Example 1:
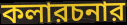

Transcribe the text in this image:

কলারচনার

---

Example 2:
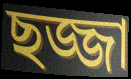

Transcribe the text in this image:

ছজ্জা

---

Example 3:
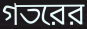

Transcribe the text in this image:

গতরের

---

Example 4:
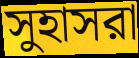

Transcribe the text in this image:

সুহাসরা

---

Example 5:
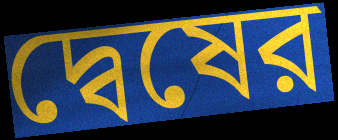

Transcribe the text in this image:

দ্বেষের